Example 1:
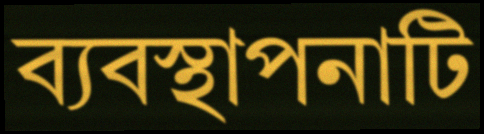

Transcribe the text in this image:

ব্যবস্থাপনাটি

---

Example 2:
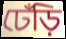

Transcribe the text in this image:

ঢেঁড়ি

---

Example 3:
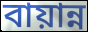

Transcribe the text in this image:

বায়ান্ন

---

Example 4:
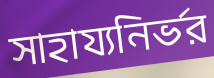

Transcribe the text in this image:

সাহায্যনির্ভর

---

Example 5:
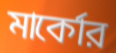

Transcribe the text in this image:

মার্কোর